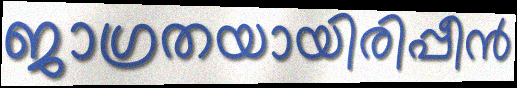
ജാഗ്രതയായിരിപ്പീൻ